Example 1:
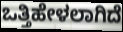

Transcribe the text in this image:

ಒತ್ತಿಹೇಳಲಾಗಿದೆ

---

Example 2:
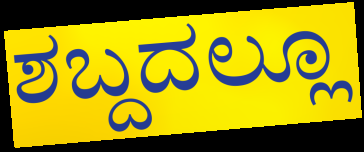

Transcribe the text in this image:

ಶಬ್ದದಲ್ಲೂ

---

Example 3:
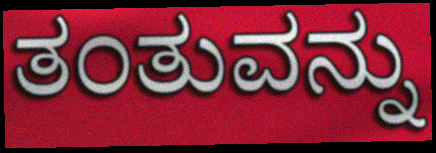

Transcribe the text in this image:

ತಂತುವನ್ನು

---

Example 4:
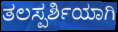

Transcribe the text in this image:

ತಲಸ್ಪರ್ಶಿಯಾಗಿ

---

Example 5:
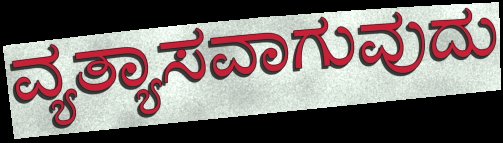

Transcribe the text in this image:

ವ್ಯತ್ಯಾಸವಾಗುವುದು